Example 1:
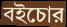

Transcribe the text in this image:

বইচোর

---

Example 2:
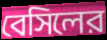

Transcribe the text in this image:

বেসিলের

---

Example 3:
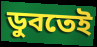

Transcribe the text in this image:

ডুবতেই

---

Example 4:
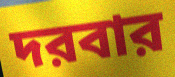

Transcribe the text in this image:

দরবার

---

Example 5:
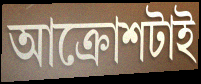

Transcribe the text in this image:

আক্রোশটাই